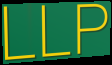
LLP